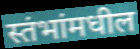
स्तंभांमधील